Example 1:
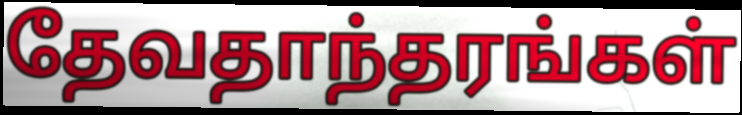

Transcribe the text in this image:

தேவதாந்தரங்கள்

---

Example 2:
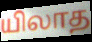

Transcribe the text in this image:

யிலாத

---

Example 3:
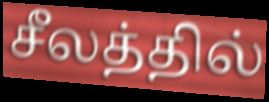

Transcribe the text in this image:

சீலத்தில்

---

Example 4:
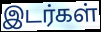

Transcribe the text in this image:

இடர்கள்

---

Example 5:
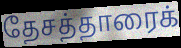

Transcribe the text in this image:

தேசத்தாரைக்